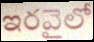
ఇరవైలో